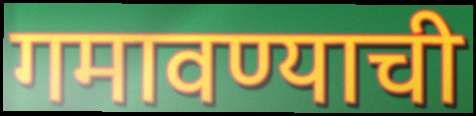
गमावण्याची